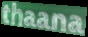
thaana